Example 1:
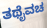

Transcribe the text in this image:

ತಥೈವಚ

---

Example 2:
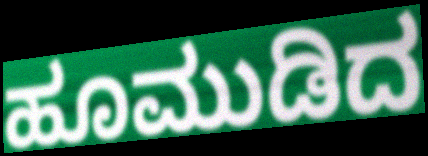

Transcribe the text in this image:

ಹೂಮುಡಿದ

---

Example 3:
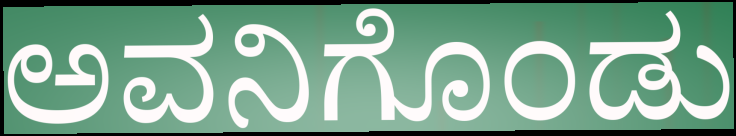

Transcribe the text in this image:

ಅವನಿಗೊಂಡು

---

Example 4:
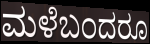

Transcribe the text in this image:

ಮಳೆಬಂದರೂ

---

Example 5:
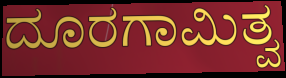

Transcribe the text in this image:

ದೂರಗಾಮಿತ್ವ